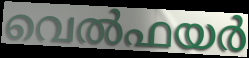
വെൽഫയർ